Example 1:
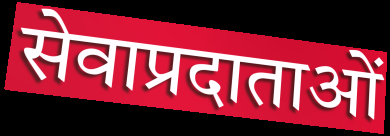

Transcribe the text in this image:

सेवाप्रदाताओं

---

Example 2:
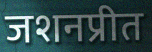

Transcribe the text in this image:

जशनप्रीत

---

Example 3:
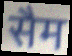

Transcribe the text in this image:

सैम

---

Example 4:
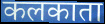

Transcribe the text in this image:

कलकाता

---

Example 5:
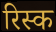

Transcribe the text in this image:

रिस्क